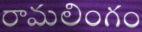
రామలింగం